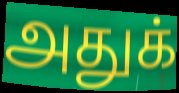
அதுக்